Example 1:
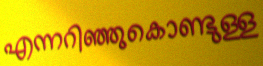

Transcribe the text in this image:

എന്നറിഞ്ഞുകൊണ്ടുള്ള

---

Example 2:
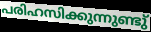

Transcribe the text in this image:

പരിഹസിക്കുന്നുണ്ടു്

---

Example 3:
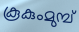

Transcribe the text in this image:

കൂകുംമുമ്പ്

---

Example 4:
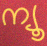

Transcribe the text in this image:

ന്യൂ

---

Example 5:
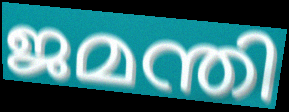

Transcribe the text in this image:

ജമന്തി